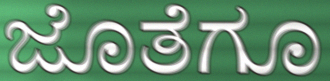
ಜೊತೆಗೂ